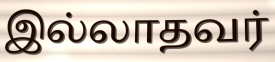
இல்லாதவர்